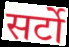
सर्टो